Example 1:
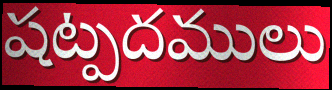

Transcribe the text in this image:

షట్పదములు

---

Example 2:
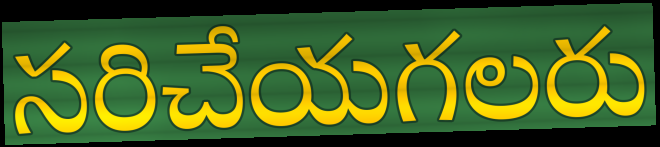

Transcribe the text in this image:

సరిచేయగలరు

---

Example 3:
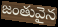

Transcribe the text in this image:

జంతువైన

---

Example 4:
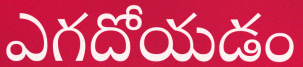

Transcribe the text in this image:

ఎగదోయడం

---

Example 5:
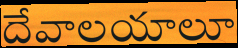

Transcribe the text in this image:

దేవాలయాలూ